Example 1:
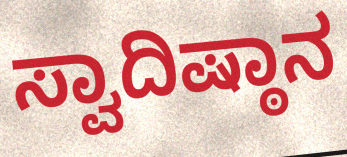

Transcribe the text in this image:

ಸ್ವಾದಿಷ್ಠಾನ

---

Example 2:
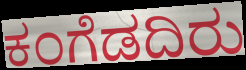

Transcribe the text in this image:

ಕಂಗೆಡದಿರು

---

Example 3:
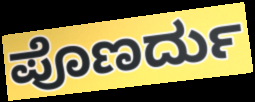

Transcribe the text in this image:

ಪೊಣರ್ದು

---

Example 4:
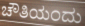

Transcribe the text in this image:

ಚೌತಿಯಂದು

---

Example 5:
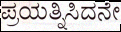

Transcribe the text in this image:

ಪ್ರಯತ್ನಿಸಿದನೇ